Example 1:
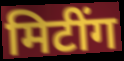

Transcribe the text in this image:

मिटींग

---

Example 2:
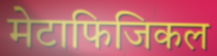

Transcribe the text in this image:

मेटाफिजिकल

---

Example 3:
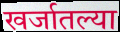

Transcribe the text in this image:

खर्जातल्या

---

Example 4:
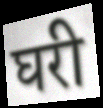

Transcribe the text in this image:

घरी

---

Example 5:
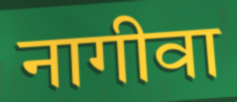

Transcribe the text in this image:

नागीवा